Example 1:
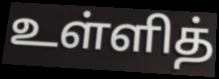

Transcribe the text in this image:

உள்ளித்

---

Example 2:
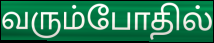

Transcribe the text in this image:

வரும்போதில்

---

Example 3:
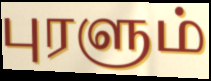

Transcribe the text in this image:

புரளும்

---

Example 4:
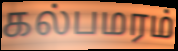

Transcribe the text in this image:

கல்பமரம்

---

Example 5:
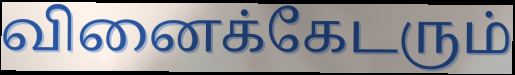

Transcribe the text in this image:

வினைக்கேடரும்